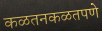
कळतनकळतपणे